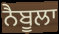
ਨੈਬੂਲਾ